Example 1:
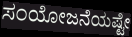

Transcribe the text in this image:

ಸಂಯೋಜನೆಯಷ್ಟೇ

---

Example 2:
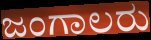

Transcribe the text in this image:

ಜಂಗಾಲರು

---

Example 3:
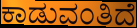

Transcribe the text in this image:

ಕಾಡುವಂತಿದೆ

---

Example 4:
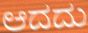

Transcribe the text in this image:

ಆದದು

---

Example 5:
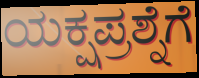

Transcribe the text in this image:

ಯಕ್ಷಪ್ರಶ್ನೆಗೆ